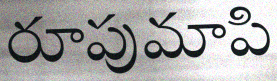
రూపుమాపి